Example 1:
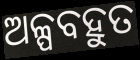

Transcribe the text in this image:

ଅଳ୍ପବହୁତ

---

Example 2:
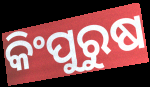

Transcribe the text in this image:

କିଂପୁରୁଷ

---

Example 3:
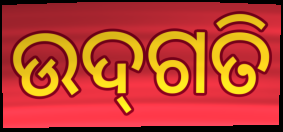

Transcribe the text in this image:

ଉଦ୍‌ଗତି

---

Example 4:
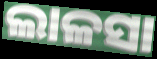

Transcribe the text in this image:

ଲାଳସା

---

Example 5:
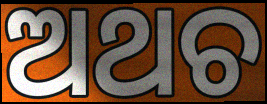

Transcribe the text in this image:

ଅଥଚ